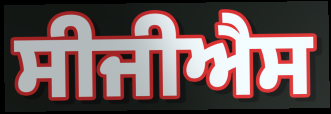
ਸੀਜੀਐਸ